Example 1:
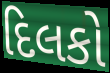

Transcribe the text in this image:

દિલકો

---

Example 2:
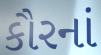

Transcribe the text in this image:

કૌરનાં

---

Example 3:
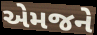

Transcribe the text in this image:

એમજને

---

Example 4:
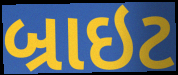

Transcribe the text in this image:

બ્રાઇટ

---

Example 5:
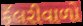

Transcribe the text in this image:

કૅલરીવાળો